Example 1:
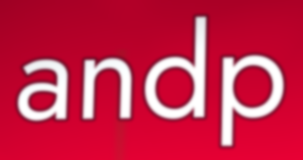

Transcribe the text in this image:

andp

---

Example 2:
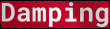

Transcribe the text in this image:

Damping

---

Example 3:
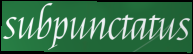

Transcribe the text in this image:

subpunctatus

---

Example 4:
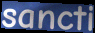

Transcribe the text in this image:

sancti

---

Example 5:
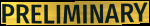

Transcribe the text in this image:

PRELIMINARY